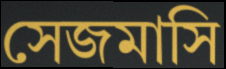
সেজমাসি